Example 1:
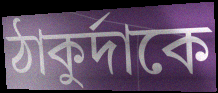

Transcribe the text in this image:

ঠাকুর্দাকে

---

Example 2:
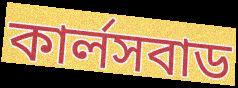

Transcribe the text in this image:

কার্লসবাড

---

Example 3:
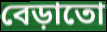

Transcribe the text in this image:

বেড়াতো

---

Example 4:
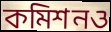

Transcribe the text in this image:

কমিশনও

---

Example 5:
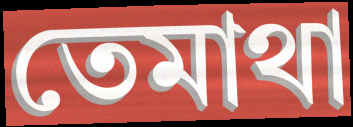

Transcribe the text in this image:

তেমাথা